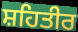
ਸ਼ਹਿਤੀਰ